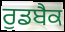
ਰੁਡਬੈਕ